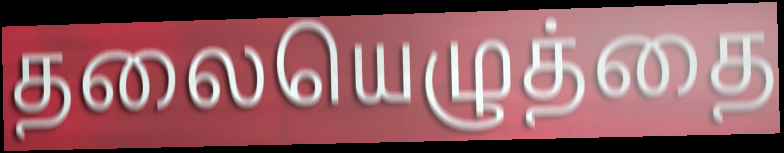
தலையெழுத்தை